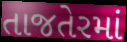
તાજતેરમાં